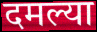
दमल्या